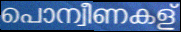
പൊന്വീണകള്